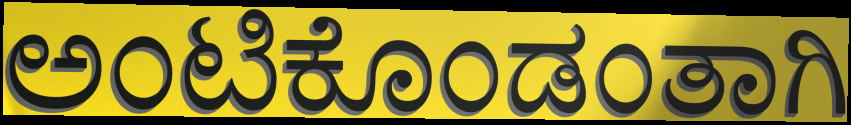
ಅಂಟಿಕೊಂಡಂತಾಗಿ